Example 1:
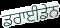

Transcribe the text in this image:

ਡਰਾਈਡੇਨ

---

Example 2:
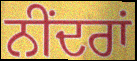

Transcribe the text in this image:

ਨੀਂਦਰਾਂ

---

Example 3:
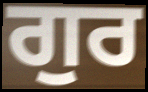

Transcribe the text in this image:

ਗੁਰ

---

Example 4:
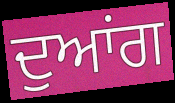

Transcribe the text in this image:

ਦੁਆਂਗ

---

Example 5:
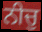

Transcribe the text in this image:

ਨੀਚੁ